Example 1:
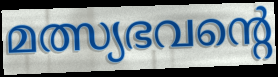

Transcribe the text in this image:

മത്സ്യഭവന്റെ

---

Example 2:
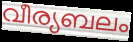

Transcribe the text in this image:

വീര്യബലം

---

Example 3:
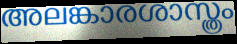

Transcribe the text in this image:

അലങ്കാരശാസ്ത്രം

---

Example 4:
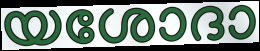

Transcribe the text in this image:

യശോദാ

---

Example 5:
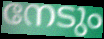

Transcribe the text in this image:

നേടും